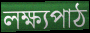
লক্ষ্যপাঠ